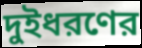
দুইধরণের